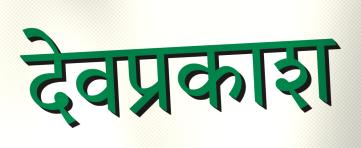
देवप्रकाश